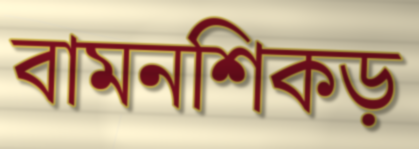
বামনশিকড়